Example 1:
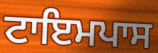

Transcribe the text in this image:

ਟਾਇਮਪਾਸ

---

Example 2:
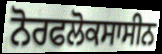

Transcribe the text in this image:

ਨੋਰਫਲੋਕਸਾਸੀਨ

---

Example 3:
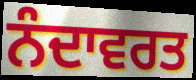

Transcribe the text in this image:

ਨੰਦਾਵਰਤ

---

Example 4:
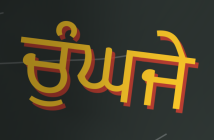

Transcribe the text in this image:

ਚੁੰਘਜੇ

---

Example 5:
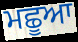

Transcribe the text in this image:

ਮਛੂਆ